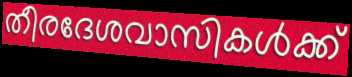
തീരദേശവാസികൾക്ക്